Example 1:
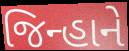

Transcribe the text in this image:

જિન્હાને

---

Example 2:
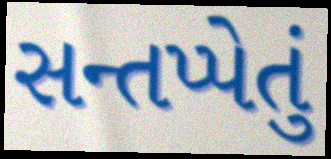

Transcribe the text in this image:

સન્તપ્પેતું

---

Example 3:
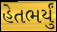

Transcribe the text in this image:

હેતભર્યું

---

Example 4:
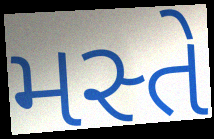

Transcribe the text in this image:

મસ્તે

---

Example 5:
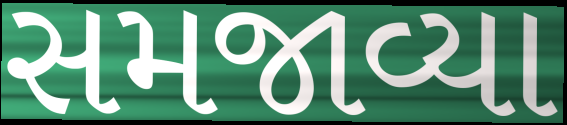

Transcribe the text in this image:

સમજાવ્યા